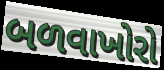
બળવાખોરો